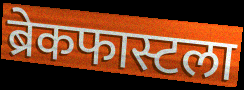
ब्रेकफास्टला